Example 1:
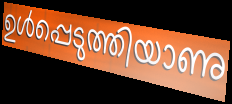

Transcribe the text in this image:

ഉൾപ്പെടുത്തിയാണു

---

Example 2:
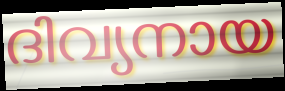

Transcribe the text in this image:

ദിവ്യനായ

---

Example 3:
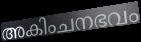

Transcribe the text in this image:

അകിംചനഭവം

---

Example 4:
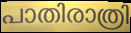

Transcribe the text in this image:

പാതിരാത്രി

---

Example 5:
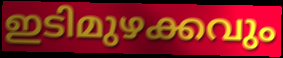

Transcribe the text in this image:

ഇടിമുഴക്കവും